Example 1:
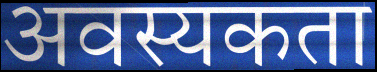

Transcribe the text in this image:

अवस्यकता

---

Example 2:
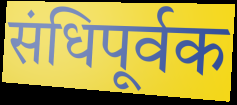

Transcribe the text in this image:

संधिपूर्वक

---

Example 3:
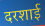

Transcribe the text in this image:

दरशाई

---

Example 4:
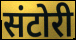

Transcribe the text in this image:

संटोरी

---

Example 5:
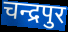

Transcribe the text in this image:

चन्द्रपुर